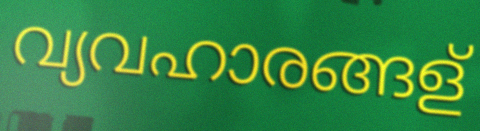
വ്യവഹാരങ്ങള്